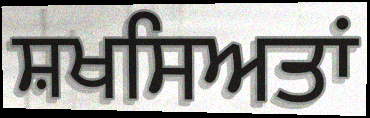
ਸ਼ਖਸਿਅਤਾਂ